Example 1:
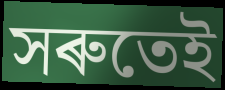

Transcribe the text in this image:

সৰুতেই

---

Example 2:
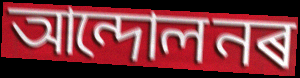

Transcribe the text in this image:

আন্দোলনৰ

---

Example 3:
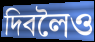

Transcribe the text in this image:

দিবলৈও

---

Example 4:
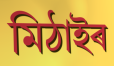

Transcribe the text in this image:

মিঠাইৰ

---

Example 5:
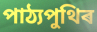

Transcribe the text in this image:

পাঠ্যপুথিৰ